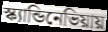
স্ক্যান্ডিনেভিয়ায়